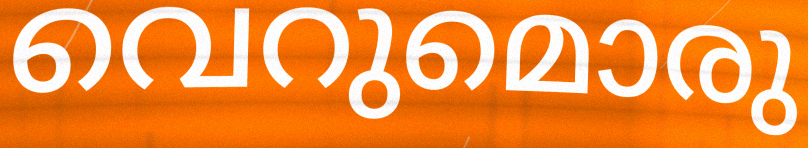
വെറുമൊരു